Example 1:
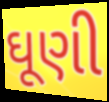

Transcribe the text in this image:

ઘૂણી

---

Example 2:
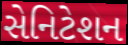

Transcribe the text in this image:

સેનિટેશન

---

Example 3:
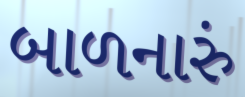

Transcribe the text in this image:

બાળનારું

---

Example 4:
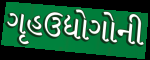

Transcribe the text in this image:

ગૃહઉદ્યોગોની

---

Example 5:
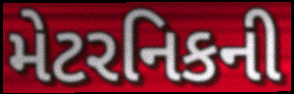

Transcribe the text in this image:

મેટરનિકની